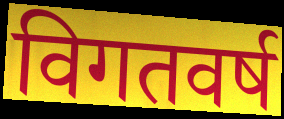
विगतवर्ष